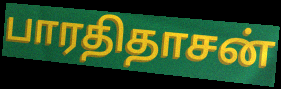
பாரதிதாசன்